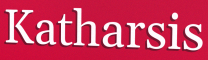
Katharsis